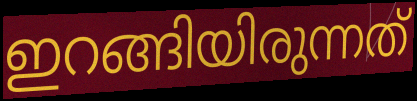
ഇറങ്ങിയിരുന്നത്